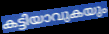
കട്ടിയാവുകയും